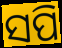
ସପି